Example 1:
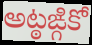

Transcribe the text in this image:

అట్ఠఙ్గికో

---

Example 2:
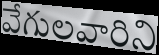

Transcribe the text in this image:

వేగులవారిని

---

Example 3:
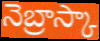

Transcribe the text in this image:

నెబ్రాస్కా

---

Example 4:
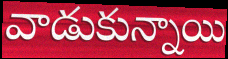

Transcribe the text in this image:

వాడుకున్నాయి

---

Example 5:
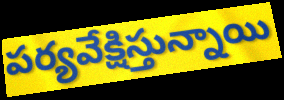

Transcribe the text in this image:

పర్యవేక్షిస్తున్నాయి